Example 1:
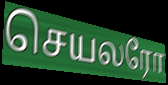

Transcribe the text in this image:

செயலரோ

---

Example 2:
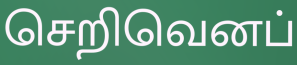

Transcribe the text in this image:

செறிவெனப்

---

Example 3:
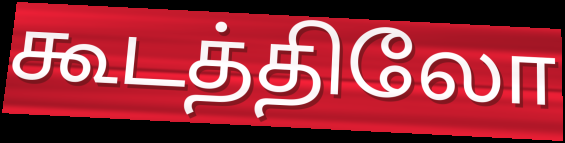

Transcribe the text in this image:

கூடத்திலோ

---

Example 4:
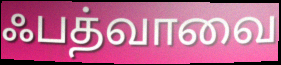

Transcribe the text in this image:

ஃபத்வாவை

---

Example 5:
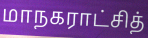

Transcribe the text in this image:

மாநகராட்சித்